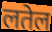
लतेल